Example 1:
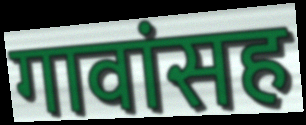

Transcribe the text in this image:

गावांसह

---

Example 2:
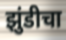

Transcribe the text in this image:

झुंडीचा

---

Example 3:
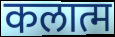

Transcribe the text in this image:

कलात्म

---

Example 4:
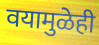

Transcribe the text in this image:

वयामुळेही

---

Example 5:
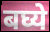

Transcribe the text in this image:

बघ्ये